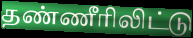
தண்ணீரிலிட்டு